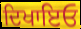
ਦਿਖਾਇਓ